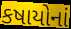
કષાયોનાં